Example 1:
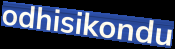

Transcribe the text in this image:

odhisikondu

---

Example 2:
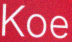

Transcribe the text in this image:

Koe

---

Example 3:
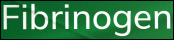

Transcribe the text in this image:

Fibrinogen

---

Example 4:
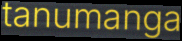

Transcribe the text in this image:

tanumanga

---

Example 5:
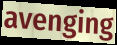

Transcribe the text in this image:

avenging